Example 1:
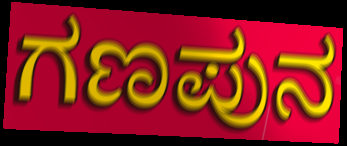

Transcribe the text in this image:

ಗಣಪುನ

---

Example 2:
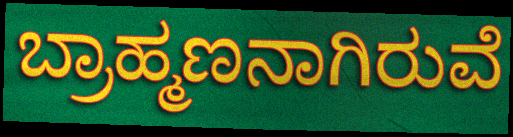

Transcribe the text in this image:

ಬ್ರಾಹ್ಮಣನಾಗಿರುವೆ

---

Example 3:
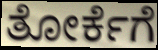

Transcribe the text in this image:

ತೋರ್ಕೆಗೆ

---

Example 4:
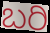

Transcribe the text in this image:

ಬರಿ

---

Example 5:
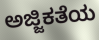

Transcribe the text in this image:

ಅಜ್ಜಿಕತೆಯ